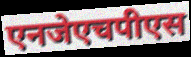
एनजेएचपीएस